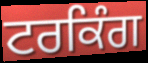
ਟਰਕਿੰਗ